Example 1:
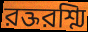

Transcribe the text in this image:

রক্তরশ্মি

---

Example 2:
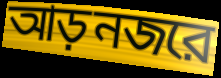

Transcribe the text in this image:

আড়নজরে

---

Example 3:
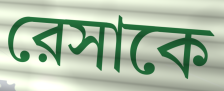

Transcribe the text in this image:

রেসাকে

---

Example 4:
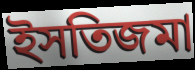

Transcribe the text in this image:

ইসতিজমা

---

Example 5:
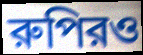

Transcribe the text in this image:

রুপিরও